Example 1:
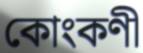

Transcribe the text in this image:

কোংকণী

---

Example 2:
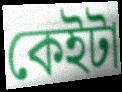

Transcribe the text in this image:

কেইটা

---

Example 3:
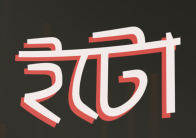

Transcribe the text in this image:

ইটো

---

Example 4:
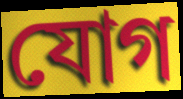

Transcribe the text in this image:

যোগ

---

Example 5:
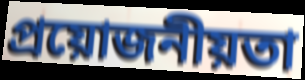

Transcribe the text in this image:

প্ৰয়োজনীয়তা